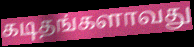
கடிதங்களாவது